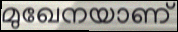
മുഖേനയാണ്